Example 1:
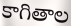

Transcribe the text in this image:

కాగితాల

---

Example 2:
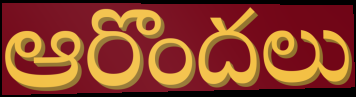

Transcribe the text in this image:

ఆరొందలు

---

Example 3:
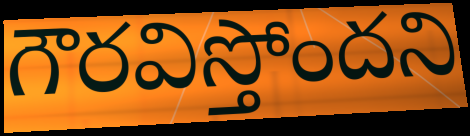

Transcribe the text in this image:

గౌరవిస్తోందని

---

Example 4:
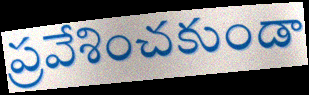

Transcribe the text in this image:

ప్రవేశించకుండా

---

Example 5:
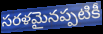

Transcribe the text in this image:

సరళమైనప్పటికీ